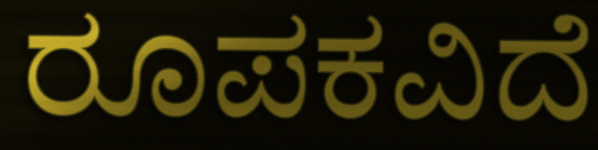
ರೂಪಕವಿದೆ